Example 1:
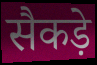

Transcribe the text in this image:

सैकड़े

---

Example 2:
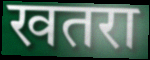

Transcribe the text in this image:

खतरा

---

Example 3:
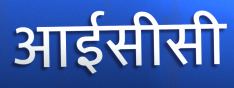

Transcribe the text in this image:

आईसीसी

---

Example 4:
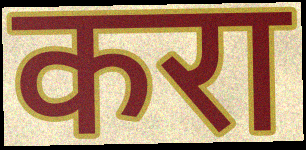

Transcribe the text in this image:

करा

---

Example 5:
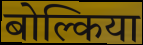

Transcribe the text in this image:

बोल्किया